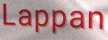
Lappan